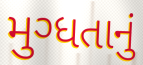
મુગ્ધતાનું